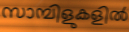
സാമ്പിളുകളിൽ